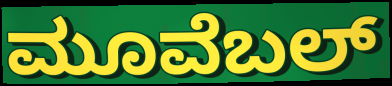
ಮೂವೆಬಲ್